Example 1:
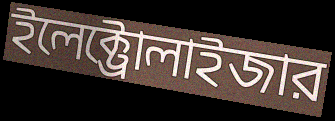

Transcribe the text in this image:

ইলেক্ট্রোলাইজার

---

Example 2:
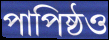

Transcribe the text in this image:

পাপিষ্ঠও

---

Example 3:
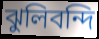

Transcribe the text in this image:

ঝুলিবন্দি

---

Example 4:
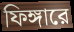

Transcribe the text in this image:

ফিঙ্গারে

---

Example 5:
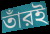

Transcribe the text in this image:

তাঁরই